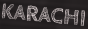
KARACHI